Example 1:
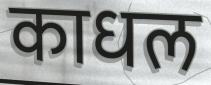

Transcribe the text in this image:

काधल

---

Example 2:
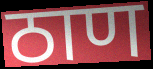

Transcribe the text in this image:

ठाण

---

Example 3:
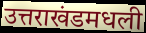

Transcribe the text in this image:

उत्तराखंडमधली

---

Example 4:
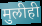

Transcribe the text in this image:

मुलीही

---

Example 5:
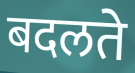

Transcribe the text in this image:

बदलते